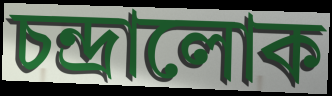
চন্দ্ৰালোক